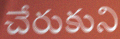
చేరుకుని